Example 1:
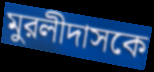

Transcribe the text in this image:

মুরলীদাসকে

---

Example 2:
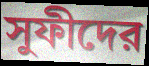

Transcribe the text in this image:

সুফীদের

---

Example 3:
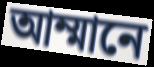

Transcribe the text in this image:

আম্মানে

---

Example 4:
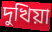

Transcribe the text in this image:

দুখিয়া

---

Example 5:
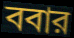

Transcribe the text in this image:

ববার